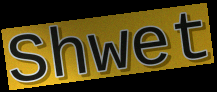
Shwet